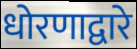
धोरणाद्वारे